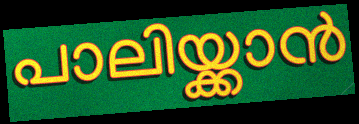
പാലിയ്ക്കാൻ